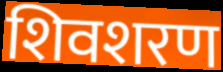
शिवशरण